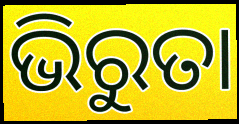
ଭିରୁତା